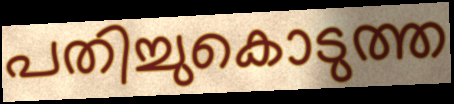
പതിച്ചുകൊടുത്ത